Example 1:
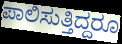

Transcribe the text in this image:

ಪಾಲಿಸುತ್ತಿದ್ದರೂ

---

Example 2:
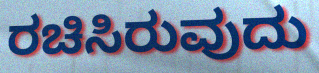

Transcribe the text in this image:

ರಚಿಸಿರುವುದು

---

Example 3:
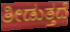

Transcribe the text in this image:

ತೀಡುತ್ತದೆ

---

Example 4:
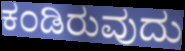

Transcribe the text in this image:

ಕಂಡಿರುವುದು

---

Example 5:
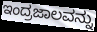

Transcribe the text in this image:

ಇಂದ್ರಜಾಲವನ್ನು